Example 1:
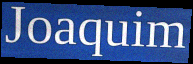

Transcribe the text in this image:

Joaquim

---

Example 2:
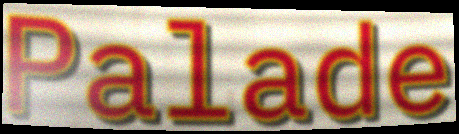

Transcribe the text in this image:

Palade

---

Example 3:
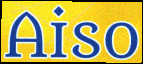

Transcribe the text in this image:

Aiso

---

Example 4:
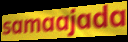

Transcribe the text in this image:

samaajada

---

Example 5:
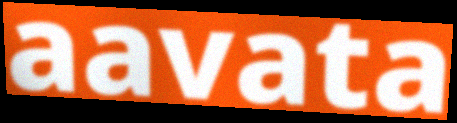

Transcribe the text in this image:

aavata